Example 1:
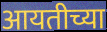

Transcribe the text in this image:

आयतीच्या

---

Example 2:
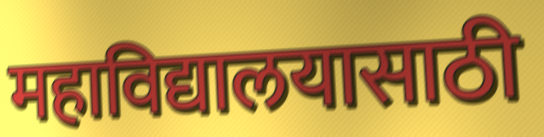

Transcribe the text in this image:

महाविद्यालयासाठी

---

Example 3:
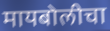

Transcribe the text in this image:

मायबोलीचा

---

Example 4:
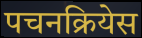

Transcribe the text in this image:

पचनक्रियेस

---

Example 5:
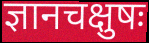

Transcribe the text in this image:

ज्ञानचक्षुषः